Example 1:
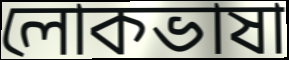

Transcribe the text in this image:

লোকভাষা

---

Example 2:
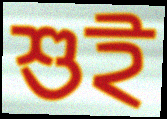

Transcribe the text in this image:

শুই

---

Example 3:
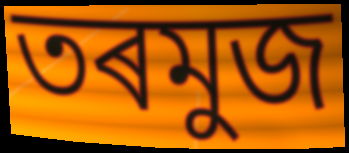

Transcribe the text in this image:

তৰমুজ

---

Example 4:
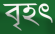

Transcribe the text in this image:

বৃহৎ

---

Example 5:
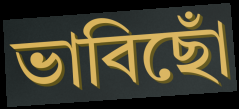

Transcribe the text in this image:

ভাবিছোঁ